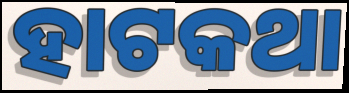
ହାଟକଥା